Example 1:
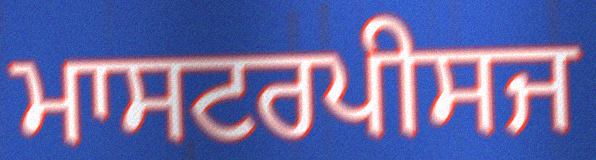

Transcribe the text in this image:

ਮਾਸਟਰਪੀਸਜ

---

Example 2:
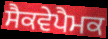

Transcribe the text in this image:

ਸੈਕਵੇਪੈਮਕ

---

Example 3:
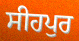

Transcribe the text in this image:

ਸੀਹਪੁਰ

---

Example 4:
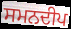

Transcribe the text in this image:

ਸਮਨਦੀਪ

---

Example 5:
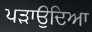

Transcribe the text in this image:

ਪੜਾਉਦਿਆ